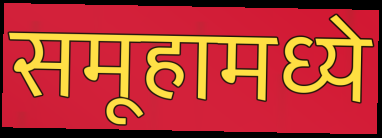
समूहामध्ये